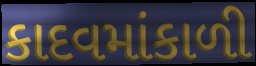
કાદવમાંકાળી